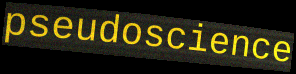
pseudoscience